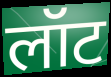
लॉट